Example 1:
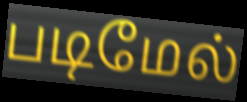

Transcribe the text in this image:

படிமேல்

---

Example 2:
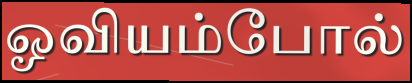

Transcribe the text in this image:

ஓவியம்போல்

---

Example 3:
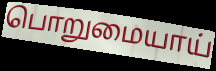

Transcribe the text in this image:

பொறுமையாய்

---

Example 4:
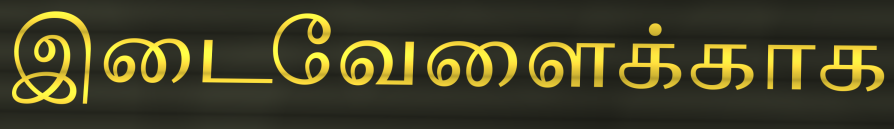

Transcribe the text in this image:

இடைவேளைக்காக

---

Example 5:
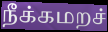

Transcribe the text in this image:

நீக்கமறச்